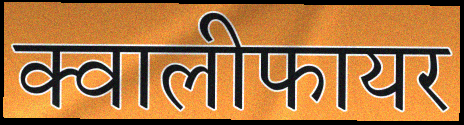
क्‍वालीफायर